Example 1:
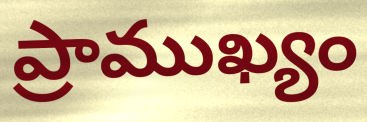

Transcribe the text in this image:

ప్రాముఖ్యం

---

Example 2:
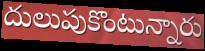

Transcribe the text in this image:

దులుపుకొంటున్నారు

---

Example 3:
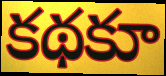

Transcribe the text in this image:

కథకూ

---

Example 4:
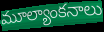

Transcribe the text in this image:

మూల్యాంకనాలు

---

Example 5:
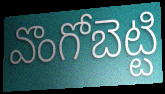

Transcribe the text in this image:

వొంగోబెట్టి